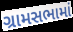
ગ્રામસભામાં